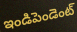
ఇండిపెండెంట్